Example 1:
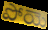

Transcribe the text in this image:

పోయె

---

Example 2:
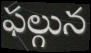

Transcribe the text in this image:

ఫల్గున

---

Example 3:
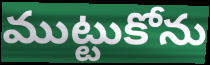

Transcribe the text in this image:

ముట్టుకోను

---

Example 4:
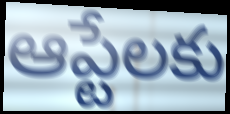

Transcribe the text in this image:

ఆప్టేలకు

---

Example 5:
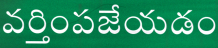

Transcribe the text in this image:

వర్తింపజేయడం